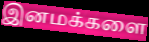
இனமக்களை